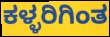
ಕಳ್ಳರಿಗಿಂತ